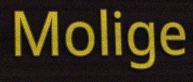
Molige